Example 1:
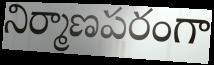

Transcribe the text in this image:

నిర్మాణపరంగా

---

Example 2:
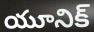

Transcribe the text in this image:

యూనిక్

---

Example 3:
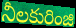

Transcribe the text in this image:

నీలకురింజి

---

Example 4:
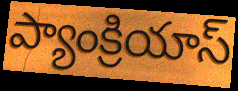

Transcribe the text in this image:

ప్యాంక్రియాస్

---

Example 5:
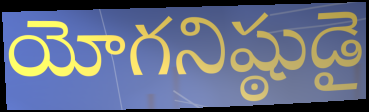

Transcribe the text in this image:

యోగనిష్ఠుడై